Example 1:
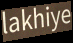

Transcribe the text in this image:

lakhiye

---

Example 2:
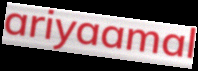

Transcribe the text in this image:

ariyaamal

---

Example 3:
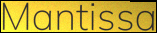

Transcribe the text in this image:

Mantissa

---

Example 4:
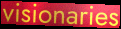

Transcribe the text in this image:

visionaries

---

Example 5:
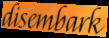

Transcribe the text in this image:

disembark